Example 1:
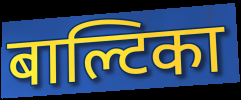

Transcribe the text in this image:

बाल्टिका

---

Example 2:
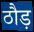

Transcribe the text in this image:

ठौड़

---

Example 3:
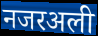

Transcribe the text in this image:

नजरअली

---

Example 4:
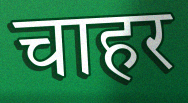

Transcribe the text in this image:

चाहर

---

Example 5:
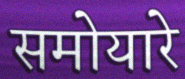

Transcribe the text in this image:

समोयारे